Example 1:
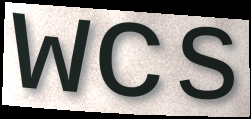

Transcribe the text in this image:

wcs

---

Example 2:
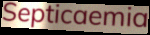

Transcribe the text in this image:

Septicaemia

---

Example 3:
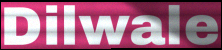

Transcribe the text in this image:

Dilwale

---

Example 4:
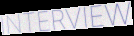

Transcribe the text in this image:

INTERVIEW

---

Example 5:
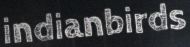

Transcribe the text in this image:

indianbirds